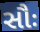
સૌઃ